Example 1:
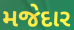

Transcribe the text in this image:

મજેદાર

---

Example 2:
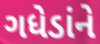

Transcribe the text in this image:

ગધેડાંને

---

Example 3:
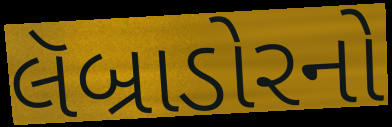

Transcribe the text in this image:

લૅબ્રાડોરનો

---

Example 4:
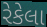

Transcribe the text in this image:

રેકેલા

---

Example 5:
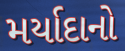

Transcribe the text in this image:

મર્યાદાનો